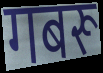
गबरू